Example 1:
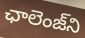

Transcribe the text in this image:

ఛాలెంజ్‌ని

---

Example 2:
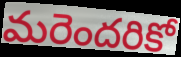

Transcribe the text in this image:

మరెందరికో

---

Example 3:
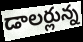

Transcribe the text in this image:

డాలర్లున్న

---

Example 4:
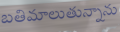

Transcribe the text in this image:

బతిమాలుతున్నాను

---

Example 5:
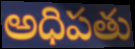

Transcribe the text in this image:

అధిపతు